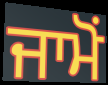
ਜਾਮੋਂ